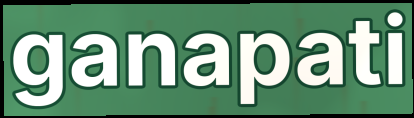
ganapati